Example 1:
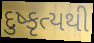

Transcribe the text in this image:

દુષ્કૃત્યથી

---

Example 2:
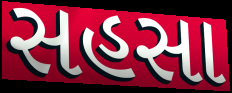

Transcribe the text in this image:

સહસા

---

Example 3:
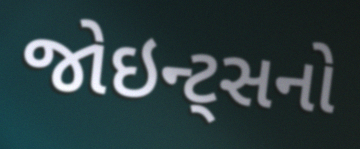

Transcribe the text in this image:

જોઇન્ટ્સનો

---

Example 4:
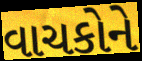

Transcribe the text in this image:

વાચકોને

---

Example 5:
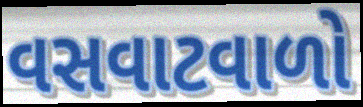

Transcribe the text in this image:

વસવાટવાળો